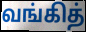
வங்கித்